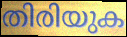
തിരിയുക